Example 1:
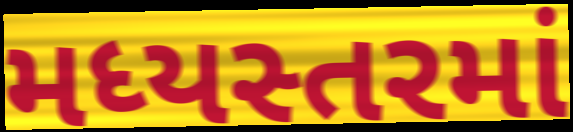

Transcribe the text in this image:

મધ્યસ્તરમાં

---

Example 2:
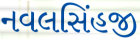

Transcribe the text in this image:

નવલસિંહજી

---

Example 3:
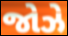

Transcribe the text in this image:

જોઝે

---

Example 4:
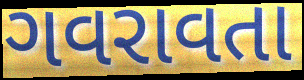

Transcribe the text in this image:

ગવરાવતા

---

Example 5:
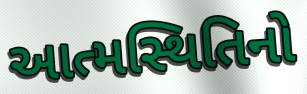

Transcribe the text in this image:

આત્મસ્થિતિનો